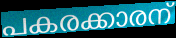
പകരക്കാരന്